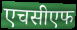
एचसीएफ